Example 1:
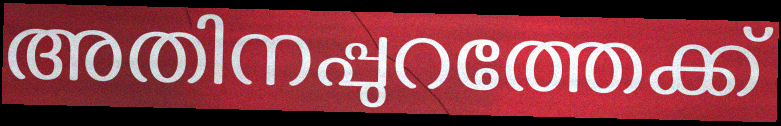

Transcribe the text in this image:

അതിനപ്പുറത്തേക്ക്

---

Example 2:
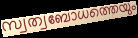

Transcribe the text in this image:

സ്വത്വബോധത്തെയും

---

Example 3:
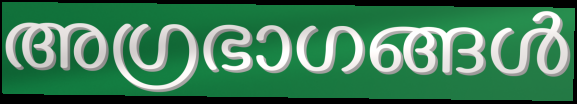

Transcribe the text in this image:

അഗ്രഭാഗങ്ങൾ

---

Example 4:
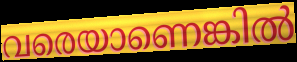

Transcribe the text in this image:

വരെയാണെങ്കിൽ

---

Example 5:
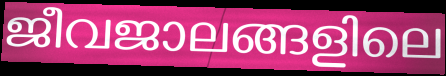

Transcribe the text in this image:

ജീവജാലങ്ങളിലെ